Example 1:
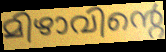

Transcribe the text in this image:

മിഴാവിന്റെ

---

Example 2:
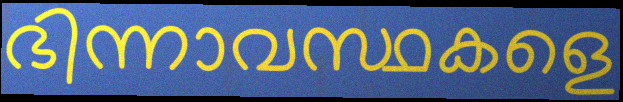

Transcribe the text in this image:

ഭിന്നാവസ്ഥകളെ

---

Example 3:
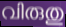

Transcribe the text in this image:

വിരുതു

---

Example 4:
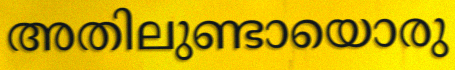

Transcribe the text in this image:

അതിലുണ്ടായൊരു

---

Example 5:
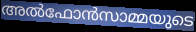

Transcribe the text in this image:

അൽഫോൻസാമ്മയുടെ